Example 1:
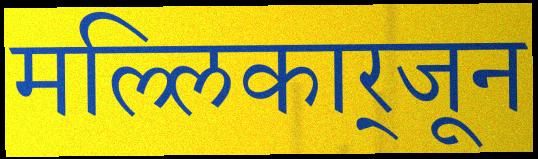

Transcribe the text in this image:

मल्लिकार्जून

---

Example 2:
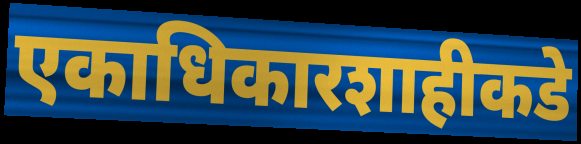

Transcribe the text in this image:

एकाधिकारशाहीकडे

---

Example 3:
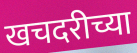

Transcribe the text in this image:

खचदरीच्या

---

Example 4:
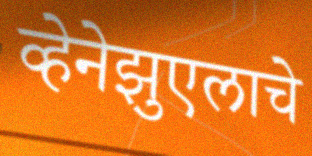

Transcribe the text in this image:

व्हेनेझुएलाचे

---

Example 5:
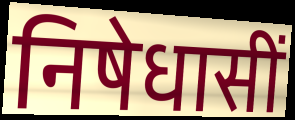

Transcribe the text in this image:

निषेधासीं